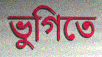
ভুগিতে